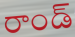
రాండ్